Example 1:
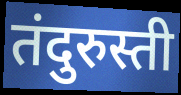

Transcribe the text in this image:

तंदुरुस्ती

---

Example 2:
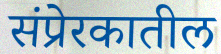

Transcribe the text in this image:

संप्रेरकातील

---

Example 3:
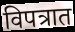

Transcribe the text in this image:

विपत्रात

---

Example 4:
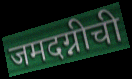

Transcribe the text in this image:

जमदग्नीची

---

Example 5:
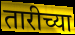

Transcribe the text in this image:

तारीच्या